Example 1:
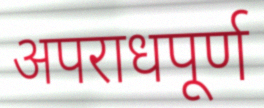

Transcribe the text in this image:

अपराधपूर्ण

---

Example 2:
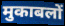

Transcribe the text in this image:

मुकाबलों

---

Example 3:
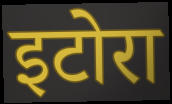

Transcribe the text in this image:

इटोरा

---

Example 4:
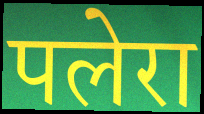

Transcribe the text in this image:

पलेरा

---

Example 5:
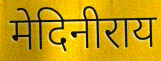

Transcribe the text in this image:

मेदिनीराय